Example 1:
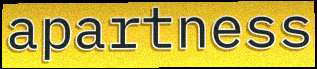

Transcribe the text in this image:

apartness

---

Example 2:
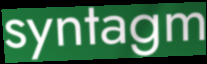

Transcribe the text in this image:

syntagm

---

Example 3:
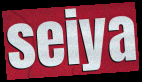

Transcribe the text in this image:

seiya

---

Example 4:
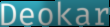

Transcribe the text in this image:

Deokar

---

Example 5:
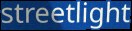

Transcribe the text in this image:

streetlight